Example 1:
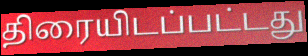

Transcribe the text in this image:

திரையிடப்பட்டது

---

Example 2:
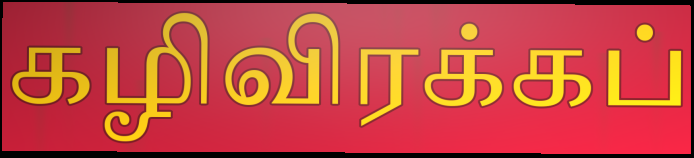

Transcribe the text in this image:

கழிவிரக்கப்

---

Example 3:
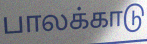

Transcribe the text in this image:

பாலக்காடு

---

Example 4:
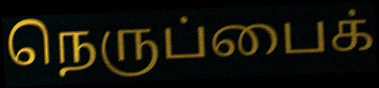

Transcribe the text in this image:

நெருப்பைக்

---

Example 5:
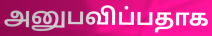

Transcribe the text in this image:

அனுபவிப்பதாக